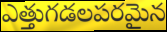
ఎత్తుగడలపరమైన